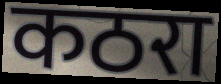
कठरा